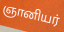
ஞானியர்